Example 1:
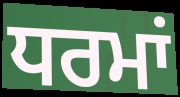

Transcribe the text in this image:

ਧਰਮਾਂ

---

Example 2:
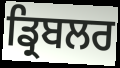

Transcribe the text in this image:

ਡ੍ਰਿਬਲਰ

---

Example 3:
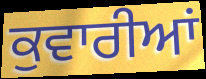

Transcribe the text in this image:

ਕੁਵਾਰੀਆਂ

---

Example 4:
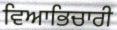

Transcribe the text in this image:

ਵਿਆਭਿਚਾਰੀ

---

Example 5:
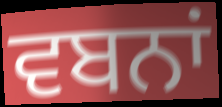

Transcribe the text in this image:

ਵਬਨਾਂ